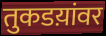
तुकडय़ांवर